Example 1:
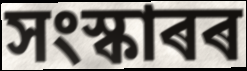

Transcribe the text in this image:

সংস্কাৰৰ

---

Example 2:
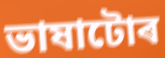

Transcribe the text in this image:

ভাষাটোৰ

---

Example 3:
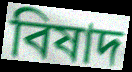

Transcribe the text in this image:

বিষাদ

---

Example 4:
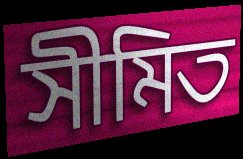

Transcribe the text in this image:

সীমিত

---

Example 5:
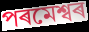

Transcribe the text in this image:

পৰমেশ্বৰ